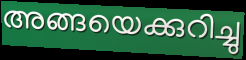
അങ്ങയെക്കുറിച്ചു